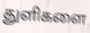
துளிகளை